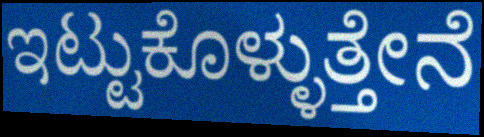
ಇಟ್ಟುಕೊಳ್ಳುತ್ತೇನೆ